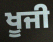
ਖੂਜੀ